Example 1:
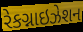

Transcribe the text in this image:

રેકગ્નાઇઝેશન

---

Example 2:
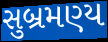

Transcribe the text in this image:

સુબ્રમણ્ય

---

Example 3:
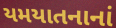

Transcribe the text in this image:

યમયાતનાનાં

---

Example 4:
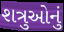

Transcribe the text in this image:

શત્રુઓનું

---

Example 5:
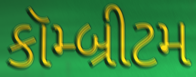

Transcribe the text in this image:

કૉમ્બ્રીટમ